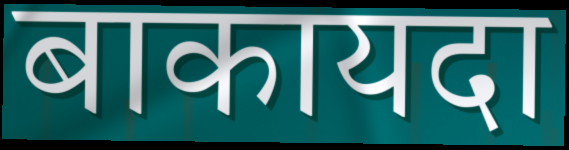
बाकायदा